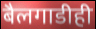
बैलगाडीही